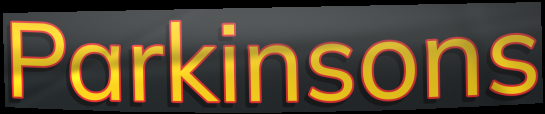
Parkinsons